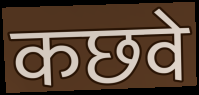
कछवे